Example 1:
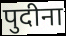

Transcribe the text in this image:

पुदीना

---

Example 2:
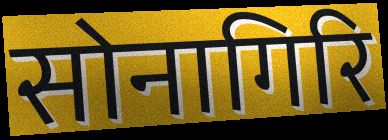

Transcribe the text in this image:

सोनागिरि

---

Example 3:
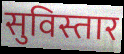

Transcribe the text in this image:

सुविस्तार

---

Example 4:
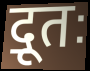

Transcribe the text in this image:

दू॒तः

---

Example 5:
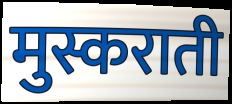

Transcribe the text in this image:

मुस्कराती